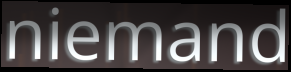
niemand